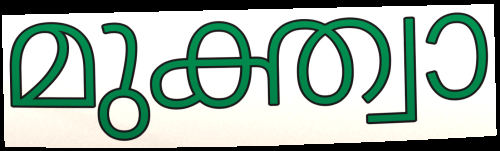
മുക്ത്വാ